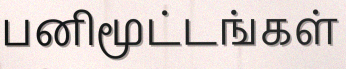
பனிமூட்டங்கள்